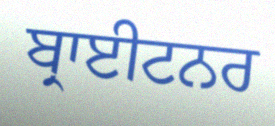
ਬ੍ਰਾਈਟਨਰ